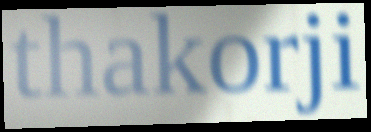
thakorji